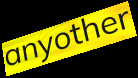
anyother